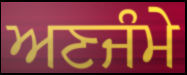
ਅਣਜੰਮੇ